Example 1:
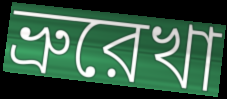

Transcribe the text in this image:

ভ্রুরেখা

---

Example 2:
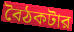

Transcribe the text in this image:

বৈঠকটার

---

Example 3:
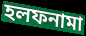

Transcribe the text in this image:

হলফনামা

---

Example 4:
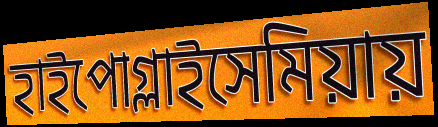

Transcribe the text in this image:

হাইপোগ্লাইসেমিয়ায়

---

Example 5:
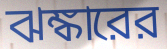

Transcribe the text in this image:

ঝঙ্কারের